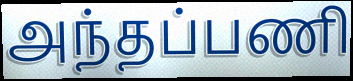
அந்தப்பணி